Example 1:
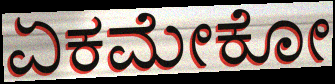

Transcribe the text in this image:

ಏಕಮೇಕೋ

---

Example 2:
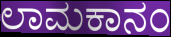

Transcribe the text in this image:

ಲಾಮಕಾನಂ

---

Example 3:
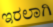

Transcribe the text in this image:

ಇರಲಾಗಿ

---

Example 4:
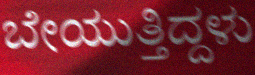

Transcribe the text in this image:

ಬೇಯುತ್ತಿದ್ದಳು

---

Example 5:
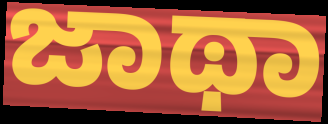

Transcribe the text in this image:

ಜಾಥಾ